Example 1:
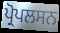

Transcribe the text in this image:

ਪ੍ਰੋਪਲਸਨ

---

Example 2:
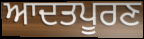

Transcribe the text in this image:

ਆਦਤਪੂਰਣ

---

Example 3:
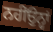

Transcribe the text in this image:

ਨਹੀਂਉਨ੍ਹਾਂ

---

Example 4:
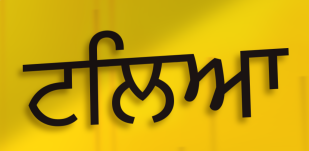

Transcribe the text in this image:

ਟਲਿਆ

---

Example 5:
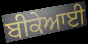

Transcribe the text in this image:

ਬੀਕੇਆਈ